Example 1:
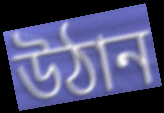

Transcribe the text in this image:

উঠান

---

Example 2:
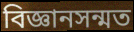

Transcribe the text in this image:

বিজ্ঞানসন্মত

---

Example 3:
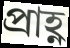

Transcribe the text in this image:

প্ৰাহ্ণ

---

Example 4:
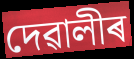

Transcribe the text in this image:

দেৱালীৰ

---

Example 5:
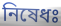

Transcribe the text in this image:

নিষেধঃ